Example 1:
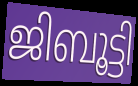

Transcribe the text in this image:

ജിബൂട്ടി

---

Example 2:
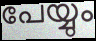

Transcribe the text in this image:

പേയ്യും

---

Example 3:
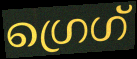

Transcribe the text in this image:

ഗ്രെഗ്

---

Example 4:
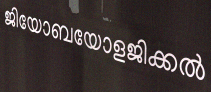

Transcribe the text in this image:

ജിയോബയോളജിക്കൽ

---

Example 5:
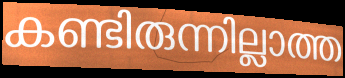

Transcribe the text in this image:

കണ്ടിരുന്നില്ലാത്ത